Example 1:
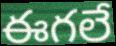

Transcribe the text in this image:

ఈగలే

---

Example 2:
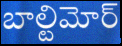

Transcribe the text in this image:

బాల్టిమోర్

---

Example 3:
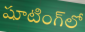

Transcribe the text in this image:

షూటింగ్‌లో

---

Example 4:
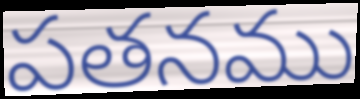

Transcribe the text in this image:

పతనము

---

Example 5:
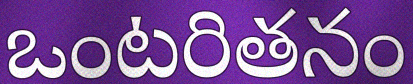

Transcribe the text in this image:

ఒంటరితనం